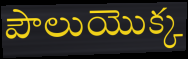
పౌలుయొక్క